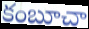
కంబూచా